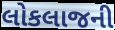
લોકલાજની